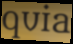
quia